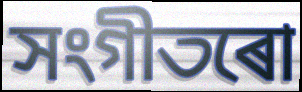
সংগীতৰো